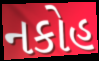
નકોહ